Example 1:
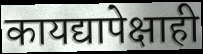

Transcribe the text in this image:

कायद्यापेक्षाही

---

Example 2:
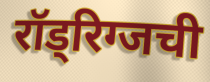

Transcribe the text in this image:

रॉड्रिग्जची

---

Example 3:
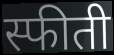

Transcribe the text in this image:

स्फीती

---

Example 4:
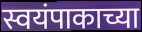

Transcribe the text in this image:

स्वयंपाकाच्या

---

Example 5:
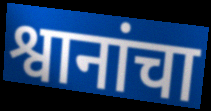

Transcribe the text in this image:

श्वानांचा